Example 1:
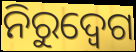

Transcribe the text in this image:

ନିରୁଦ୍ବେଗ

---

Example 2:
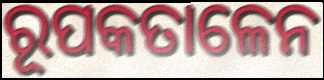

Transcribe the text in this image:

ରୂପକତାଳେନ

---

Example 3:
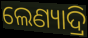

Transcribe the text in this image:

ଲେଣ୍ୟାଦ୍ରି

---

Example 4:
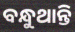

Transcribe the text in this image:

ବନ୍ଧୁଥାନ୍ତି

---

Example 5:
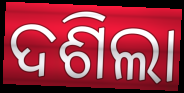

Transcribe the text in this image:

ଦଶିଲା